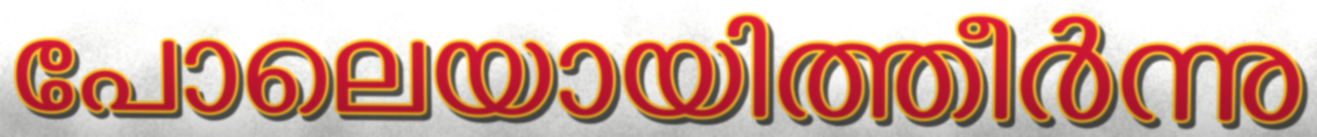
പോലെയായിത്തീർന്നു